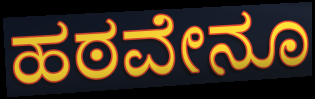
ಹಠವೇನೂ